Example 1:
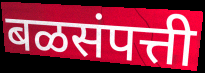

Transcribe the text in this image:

बळसंपत्ती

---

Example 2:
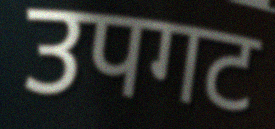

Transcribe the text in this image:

उपगट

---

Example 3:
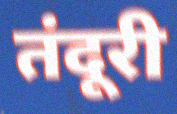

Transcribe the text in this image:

तंदूरी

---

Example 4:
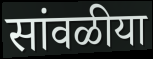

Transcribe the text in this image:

सांवळीया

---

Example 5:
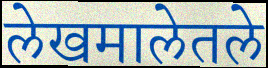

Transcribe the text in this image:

लेखमालेतले